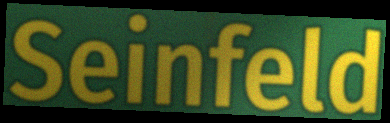
Seinfeld